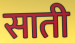
साती